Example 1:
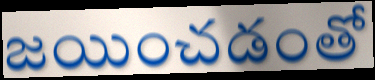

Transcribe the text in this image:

జయించడంతో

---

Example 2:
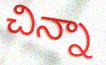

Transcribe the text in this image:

చిన్నా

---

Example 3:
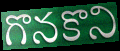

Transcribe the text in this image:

గొనకొని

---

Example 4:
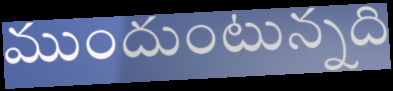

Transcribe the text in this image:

ముందుంటున్నది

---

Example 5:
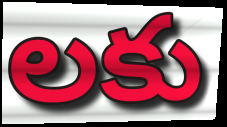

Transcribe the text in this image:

లకు